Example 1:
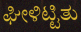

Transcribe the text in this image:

ಘೀಳಿಟ್ಟಿತು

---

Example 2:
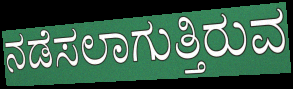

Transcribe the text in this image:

ನಡೆಸಲಾಗುತ್ತಿರುವ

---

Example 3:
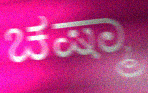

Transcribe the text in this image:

ಚಷ್ಮಾ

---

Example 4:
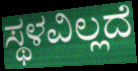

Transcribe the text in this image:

ಸ್ಥಳವಿಲ್ಲದೆ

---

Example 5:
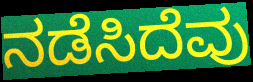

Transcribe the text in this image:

ನಡೆಸಿದೆವು